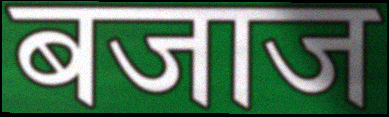
बजाज